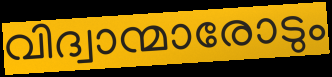
വിദ്വാന്മാരോടും